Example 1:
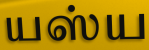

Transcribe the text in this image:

யஸ்ய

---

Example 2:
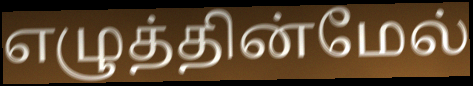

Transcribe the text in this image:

எழுத்தின்மேல்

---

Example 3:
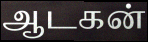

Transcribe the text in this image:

ஆடகன்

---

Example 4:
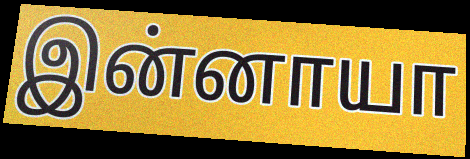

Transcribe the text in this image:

இன்னாயா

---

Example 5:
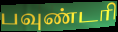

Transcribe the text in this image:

பவுண்டரி